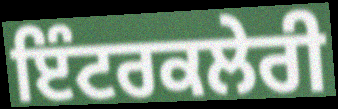
ਇੰਟਰਕਲੇਰੀ